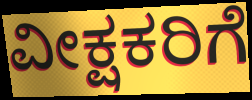
ವೀಕ್ಷಕರಿಗೆ